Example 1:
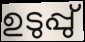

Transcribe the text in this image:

ഉടുപ്പു്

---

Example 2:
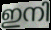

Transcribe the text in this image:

ഇനി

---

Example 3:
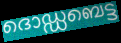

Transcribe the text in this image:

ദൊഡ്ഡബെട്ട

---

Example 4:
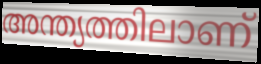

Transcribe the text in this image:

അന്ത്യത്തിലാണ്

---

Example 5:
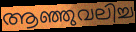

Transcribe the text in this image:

ആഞ്ഞുവലിച്ച